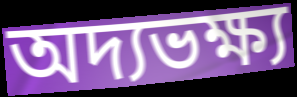
অদ্যভক্ষ্য